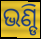
ଭଣ୍ଡି